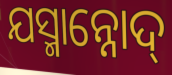
ଯସ୍ମାନ୍ନୋଦ୍